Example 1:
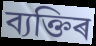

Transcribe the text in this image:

ব্যক্তিৰ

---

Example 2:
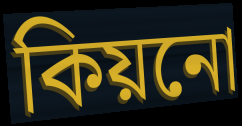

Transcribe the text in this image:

কিয়নো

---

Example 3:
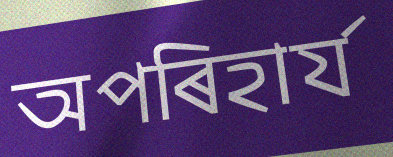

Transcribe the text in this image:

অপৰিহাৰ্য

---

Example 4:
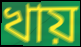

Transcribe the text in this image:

খায়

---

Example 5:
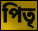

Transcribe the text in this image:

পিতৃ